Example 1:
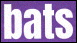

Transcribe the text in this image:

bats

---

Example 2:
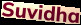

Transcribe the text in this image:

Suvidha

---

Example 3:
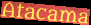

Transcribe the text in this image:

Atacama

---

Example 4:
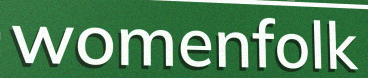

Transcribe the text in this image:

womenfolk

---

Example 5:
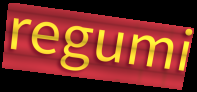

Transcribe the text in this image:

regumi